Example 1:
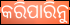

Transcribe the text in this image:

କରିପାରିନୁ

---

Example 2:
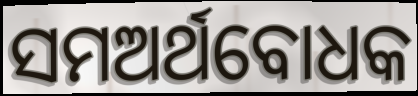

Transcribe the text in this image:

ସମଅର୍ଥବୋଧକ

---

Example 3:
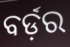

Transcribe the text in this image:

ବର୍ଡ଼ର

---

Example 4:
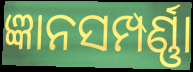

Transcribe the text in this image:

ଜ୍ଞାନସମ୍ପର୍ଣ୍ଣା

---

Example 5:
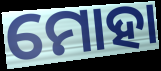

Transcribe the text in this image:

ମୋହା